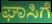
ಘಾಸಿಗೆ